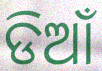
ଡିଆଁ